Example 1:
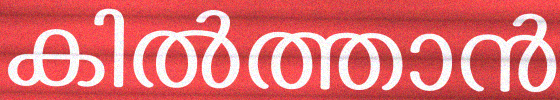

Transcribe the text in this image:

കിൽത്താൻ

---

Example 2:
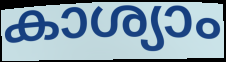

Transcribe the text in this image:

കാശ്യാം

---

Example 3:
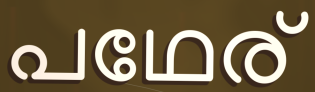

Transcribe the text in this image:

പഥേര്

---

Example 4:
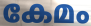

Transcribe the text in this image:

കേമം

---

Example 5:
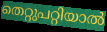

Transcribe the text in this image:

തെറ്റുപറ്റിയാൽ